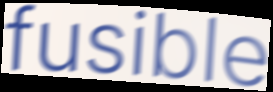
fusible